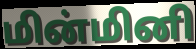
மின்மினி